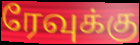
ரேவுக்கு